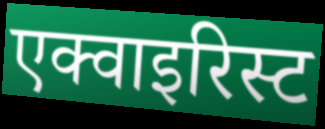
एक्वाइरिस्ट